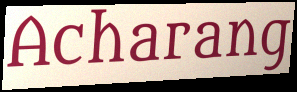
Acharang